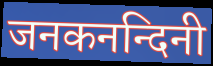
जनकनन्दिनी